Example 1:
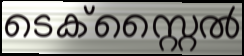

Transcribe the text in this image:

ടെക്സ്റ്റൈൽ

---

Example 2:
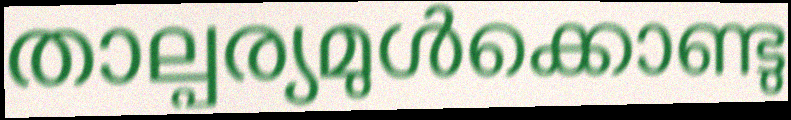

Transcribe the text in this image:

താല്പര്യമുൾക്കൊണ്ടു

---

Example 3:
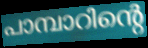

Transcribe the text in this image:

പാമ്പാറിന്റെ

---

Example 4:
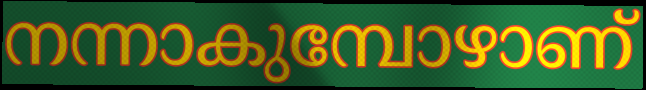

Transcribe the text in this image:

നന്നാകുമ്പോഴാണ്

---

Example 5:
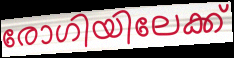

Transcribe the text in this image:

രോഗിയിലേക്ക്